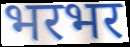
भरभर